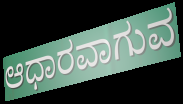
ಆಧಾರವಾಗುವ